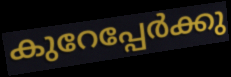
കുറേപ്പേർക്കു